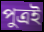
পুত্ৰই